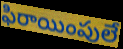
ఫిరాయింపులే